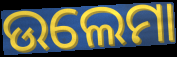
ଉଲେମା